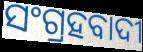
ସଂଗ୍ରହବାଦୀ